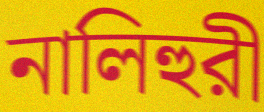
নালিহুরী